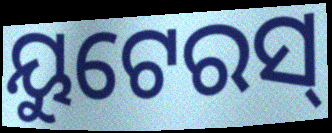
ୟୁଟେରସ୍